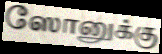
ஸோனுக்கு